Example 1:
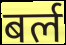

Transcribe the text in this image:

बर्ल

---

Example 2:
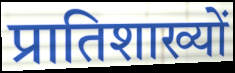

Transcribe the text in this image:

प्रातिशाख्यों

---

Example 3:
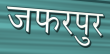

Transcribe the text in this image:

जफरपुर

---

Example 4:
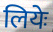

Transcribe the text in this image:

लियेः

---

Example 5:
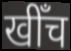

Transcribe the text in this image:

खीँच